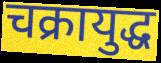
चक्रायुद्ध